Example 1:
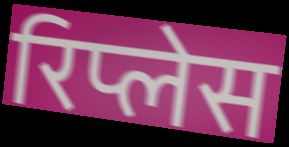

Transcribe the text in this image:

रिप्लेस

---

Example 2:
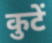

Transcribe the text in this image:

कुटें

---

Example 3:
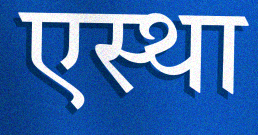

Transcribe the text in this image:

एस्था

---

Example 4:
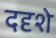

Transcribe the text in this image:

ददृशे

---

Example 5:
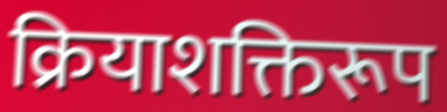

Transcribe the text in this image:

क्रियाशक्तिरूप